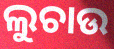
ଲୁଚାଉ